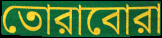
তোরাবোরা